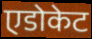
एडोकेट